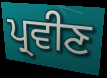
ਪ੍ਰਵੀਣ